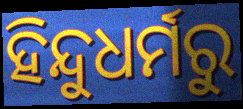
ହିନ୍ଦୁଧର୍ମରୁ